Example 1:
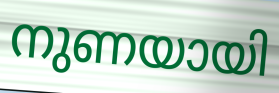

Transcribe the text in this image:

നുണയായി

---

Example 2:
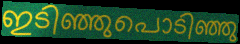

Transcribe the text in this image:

ഇടിഞ്ഞുപൊടിഞ്ഞു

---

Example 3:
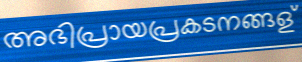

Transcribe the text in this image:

അഭിപ്രായപ്രകടനങ്ങള്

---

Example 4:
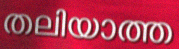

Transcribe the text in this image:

തലിയാത്ത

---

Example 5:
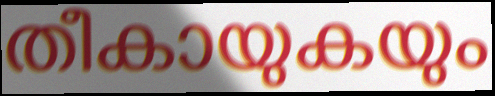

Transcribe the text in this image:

തീകായുകയും